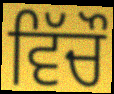
ਵਿੱਚੌ